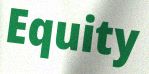
Equity